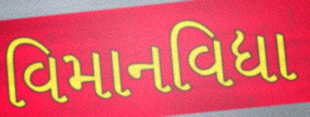
વિમાનવિદ્યા